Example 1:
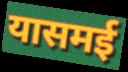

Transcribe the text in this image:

यासमई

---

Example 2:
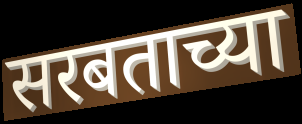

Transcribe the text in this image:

सरबताच्या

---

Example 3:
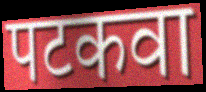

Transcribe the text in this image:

पटकवा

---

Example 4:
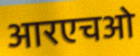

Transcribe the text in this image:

आरएचओ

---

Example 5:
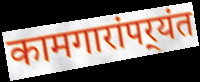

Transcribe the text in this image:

कामगारांपर्यंत